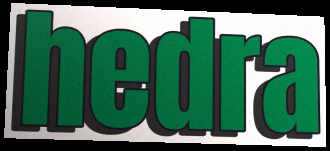
hedra